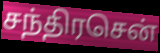
சந்திரசென்